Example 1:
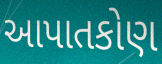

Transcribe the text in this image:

આપાતકોણ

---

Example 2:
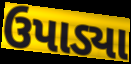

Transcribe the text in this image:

ઉપાડ્યા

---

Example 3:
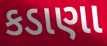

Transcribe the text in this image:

કડાણા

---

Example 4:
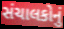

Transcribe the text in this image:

સંચાલકોનું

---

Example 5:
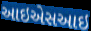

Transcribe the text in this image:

આઇએસઆઇ